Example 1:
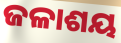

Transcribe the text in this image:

ଜଳାଶୟ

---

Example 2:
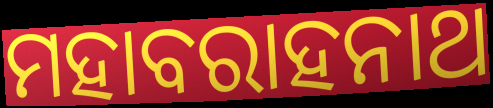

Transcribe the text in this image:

ମହାବରାହନାଥ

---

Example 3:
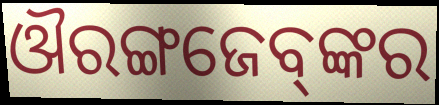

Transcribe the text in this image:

ଔରଙ୍ଗଜେବ୍‌ଙ୍କର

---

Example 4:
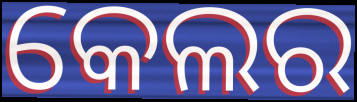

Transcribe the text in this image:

କେଲର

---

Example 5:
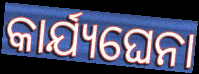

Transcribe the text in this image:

କାର୍ଯ୍ୟଘେନା